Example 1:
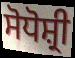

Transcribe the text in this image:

ਸੋਧੋਸ਼੍ਰੀ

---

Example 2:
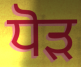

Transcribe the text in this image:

ਧੋੜ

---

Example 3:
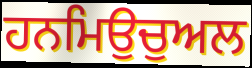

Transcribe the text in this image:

ਹਨਮਿਉਚੁਅਲ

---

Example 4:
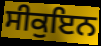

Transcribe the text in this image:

ਸੀਕੁਇਨ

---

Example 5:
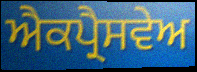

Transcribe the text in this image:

ਐਕਪ੍ਰੈਸਵੇਅ